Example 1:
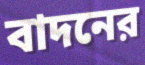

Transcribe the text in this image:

বাদনের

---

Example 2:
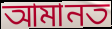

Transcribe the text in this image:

আমানত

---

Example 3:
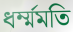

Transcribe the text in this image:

ধর্ম্মমতি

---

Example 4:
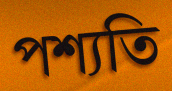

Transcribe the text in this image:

পশ্যতি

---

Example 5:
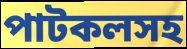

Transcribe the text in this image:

পাটকলসহ